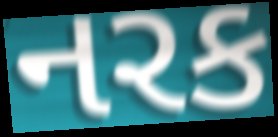
નરક